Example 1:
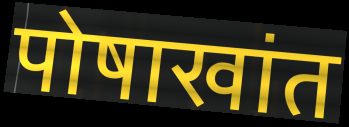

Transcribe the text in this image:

पोषाखांत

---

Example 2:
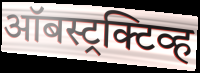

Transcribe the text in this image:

ऑबस्ट्रक्टिव्ह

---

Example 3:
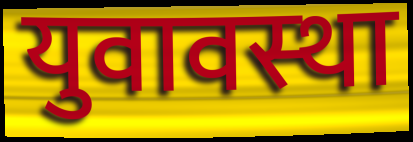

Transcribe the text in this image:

युवावस्था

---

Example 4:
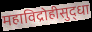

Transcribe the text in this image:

महाविद्रोहीसुद्धा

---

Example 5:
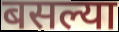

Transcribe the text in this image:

बसल्या